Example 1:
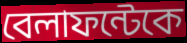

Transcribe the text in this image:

বেলাফন্টেকে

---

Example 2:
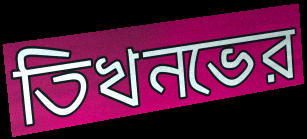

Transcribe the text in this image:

তিখনভের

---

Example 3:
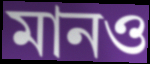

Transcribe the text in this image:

মানও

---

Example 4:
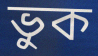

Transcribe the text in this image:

ভুক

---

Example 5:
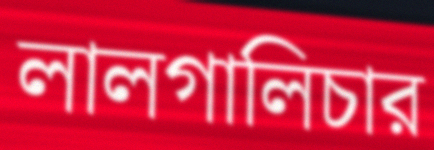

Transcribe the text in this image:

লালগালিচার